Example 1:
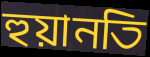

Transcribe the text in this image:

হুয়ানতি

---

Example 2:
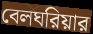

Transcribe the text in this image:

বেলঘরিয়ার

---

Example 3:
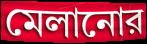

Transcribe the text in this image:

মেলানোর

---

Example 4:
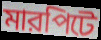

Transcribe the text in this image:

মারপিটে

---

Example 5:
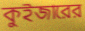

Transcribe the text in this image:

কুইজারের